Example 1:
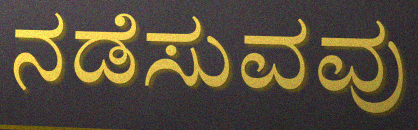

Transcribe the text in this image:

ನಡೆಸುವವು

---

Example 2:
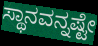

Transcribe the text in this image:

ಸ್ಥಾನವನ್ನಷ್ಟೇ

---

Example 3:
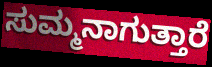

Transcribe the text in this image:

ಸುಮ್ಮನಾಗುತ್ತಾರೆ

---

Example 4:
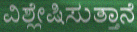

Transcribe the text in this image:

ವಿಶ್ಲೇಷಿಸುತ್ತಾನೆ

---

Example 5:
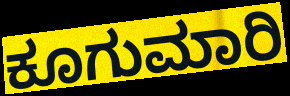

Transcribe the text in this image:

ಕೂಗುಮಾರಿ